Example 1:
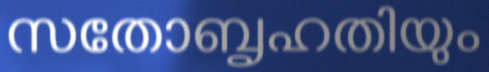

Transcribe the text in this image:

സതോബൃഹതിയും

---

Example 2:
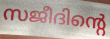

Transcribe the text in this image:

സജീദിന്റെ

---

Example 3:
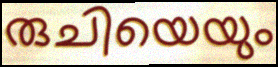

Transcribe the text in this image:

രുചിയെയും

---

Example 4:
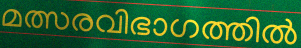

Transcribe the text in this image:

മത്സരവിഭാഗത്തിൽ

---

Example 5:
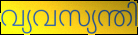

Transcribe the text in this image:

വ്യവസ്യന്തി